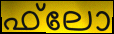
ഫ്‌ലോ